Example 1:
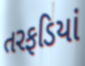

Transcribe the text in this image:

તરફડિયાં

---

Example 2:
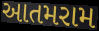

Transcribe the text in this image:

આતમરામ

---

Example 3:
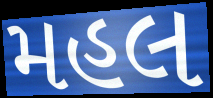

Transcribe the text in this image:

મહલ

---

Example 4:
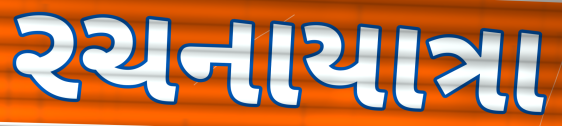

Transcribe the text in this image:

રચનાયાત્રા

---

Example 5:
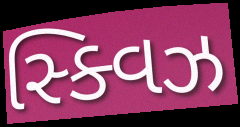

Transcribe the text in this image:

સ્ક્વિઝ